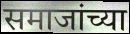
समाजांच्या